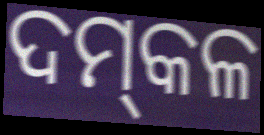
ଦମ୍‌କଳ